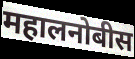
महालनोबीस